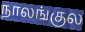
நாலங்குல